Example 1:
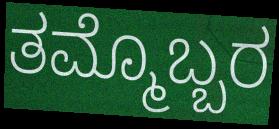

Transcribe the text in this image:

ತಮ್ಮೊಬ್ಬರ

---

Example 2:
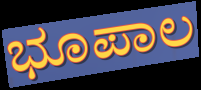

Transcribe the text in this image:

ಭೂಪಾಲ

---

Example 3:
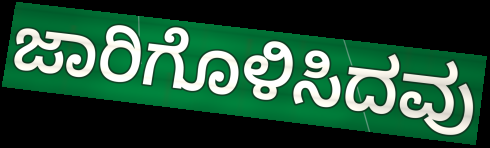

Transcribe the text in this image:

ಜಾರಿಗೊಳಿಸಿದವು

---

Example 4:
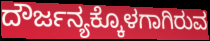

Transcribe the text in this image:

ದೌರ್ಜನ್ಯಕ್ಕೊಳಗಾಗಿರುವ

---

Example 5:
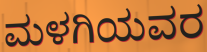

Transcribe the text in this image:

ಮಳಗಿಯವರ